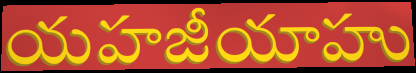
యహజీయాహు